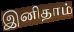
இனிதாம்